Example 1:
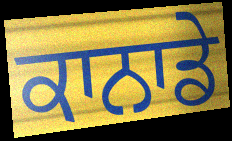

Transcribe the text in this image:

ਕਾਨਾਡੇ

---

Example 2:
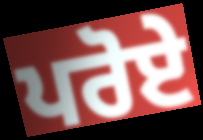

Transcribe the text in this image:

ਪਰੋਏ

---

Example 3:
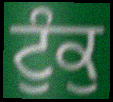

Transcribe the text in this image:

ਟੁੰਕੁ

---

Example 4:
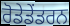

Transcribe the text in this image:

ਰੋਡੇਡੇਂਡਰਨ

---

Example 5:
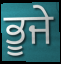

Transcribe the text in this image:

ਭੂਜੇ